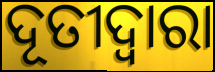
ଦୂତୀଦ୍ୱାରା